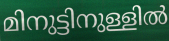
മിനുട്ടിനുള്ളിൽ